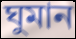
ঘুমান